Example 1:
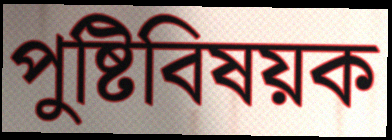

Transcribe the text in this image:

পুষ্টিবিষয়ক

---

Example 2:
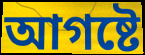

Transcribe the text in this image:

আগষ্টে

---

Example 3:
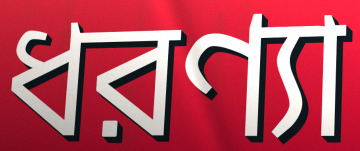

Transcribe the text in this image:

ধরণ্যা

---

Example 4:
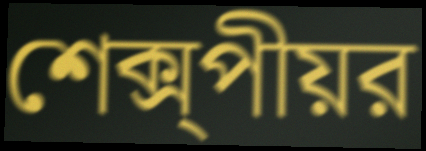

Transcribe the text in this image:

শেক্স্পীয়র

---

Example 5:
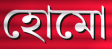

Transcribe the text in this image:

হোমো